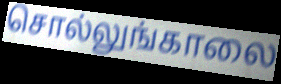
சொல்லுங்காலை